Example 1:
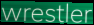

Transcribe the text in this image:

wrestler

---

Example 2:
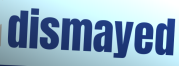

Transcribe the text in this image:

dismayed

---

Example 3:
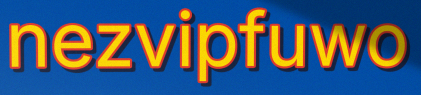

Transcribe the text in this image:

nezvipfuwo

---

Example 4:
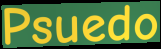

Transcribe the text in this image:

Psuedo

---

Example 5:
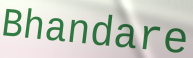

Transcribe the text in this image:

Bhandare